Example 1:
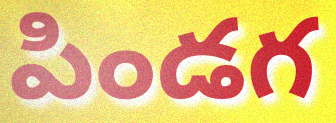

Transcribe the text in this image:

పిండగ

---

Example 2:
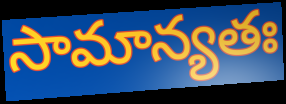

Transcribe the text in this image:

సామాన్యతః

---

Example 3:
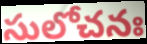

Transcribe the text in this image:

సులోచనః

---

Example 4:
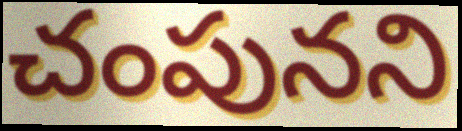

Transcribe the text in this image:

చంపునని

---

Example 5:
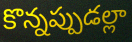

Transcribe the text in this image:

కొన్నప్పుడల్లా